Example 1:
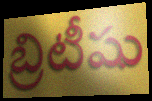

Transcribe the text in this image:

బ్రిటీషు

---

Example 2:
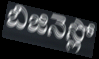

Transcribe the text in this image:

బిజినెస్లో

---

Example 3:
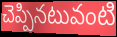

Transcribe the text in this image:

చెప్పినటువంటి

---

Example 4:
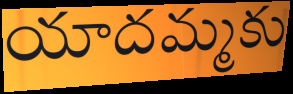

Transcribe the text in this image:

యాదమ్మకు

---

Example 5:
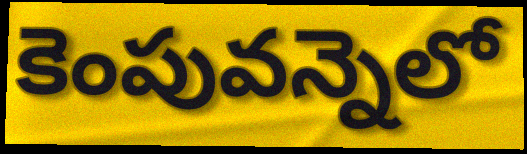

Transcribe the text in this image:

కెంపువన్నెలో